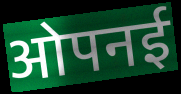
ओपनई